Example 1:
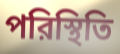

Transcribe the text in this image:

পরিস্থিতি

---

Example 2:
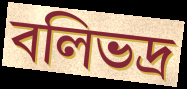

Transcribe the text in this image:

বলিভদ্র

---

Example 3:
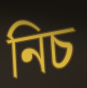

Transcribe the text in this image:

নিচ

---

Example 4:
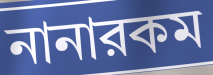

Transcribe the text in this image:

নানারকম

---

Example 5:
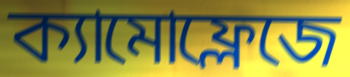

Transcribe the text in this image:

ক্যামোফ্লেজে